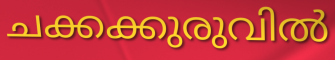
ചക്കക്കുരുവിൽ